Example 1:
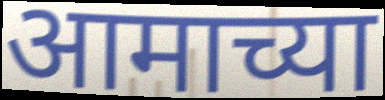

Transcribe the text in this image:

आमाच्या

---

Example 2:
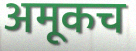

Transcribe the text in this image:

अमूकच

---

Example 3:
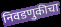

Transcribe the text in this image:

निवडणुकीचा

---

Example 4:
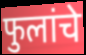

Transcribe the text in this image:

फुलांचे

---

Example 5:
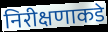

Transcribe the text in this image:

निरीक्षणाकडे